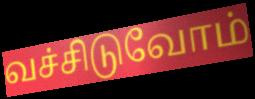
வச்சிடுவோம்